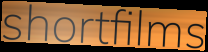
shortfilms